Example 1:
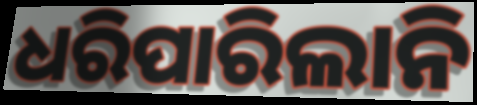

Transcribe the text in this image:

ଧରିପାରିଲାନି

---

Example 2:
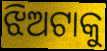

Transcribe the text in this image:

ଝିଅଟାକୁ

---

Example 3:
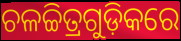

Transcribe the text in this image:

ଚଳଚ୍ଚିତ୍ରଗୁଡ଼ିକରେ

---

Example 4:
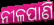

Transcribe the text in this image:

ନୀଳପାଣି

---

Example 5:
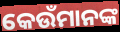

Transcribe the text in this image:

କେଉଁମାନଙ୍କ